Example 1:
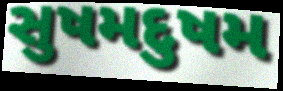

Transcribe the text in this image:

સુષમદુષમ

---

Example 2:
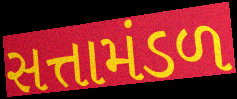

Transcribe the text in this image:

સત્તામંડળ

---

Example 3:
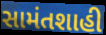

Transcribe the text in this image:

સામંતશાહી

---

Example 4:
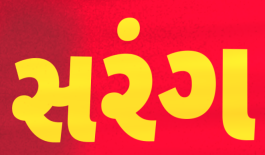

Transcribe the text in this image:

સરંગ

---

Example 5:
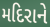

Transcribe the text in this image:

મદિરાને